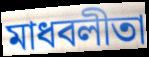
মাধবলীতা